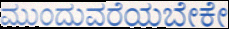
ಮುಂದುವರೆಯಬೇಕೇ